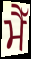
ਮੈੱ